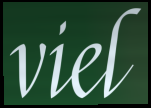
viel